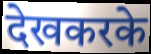
देखकरके